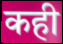
कही